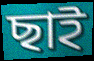
ছাই